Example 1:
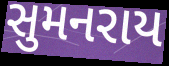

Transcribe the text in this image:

સુમનરાય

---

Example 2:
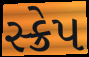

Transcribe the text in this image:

સ્ક્રેપ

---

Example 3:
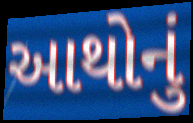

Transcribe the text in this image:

આથોનું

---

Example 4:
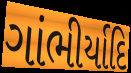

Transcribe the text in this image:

ગાંભીર્યાદિ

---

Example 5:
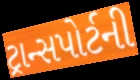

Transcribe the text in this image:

ટ્રાન્સપોર્ટની